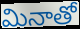
మినాతో